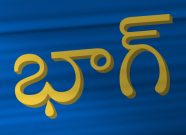
భాగ్